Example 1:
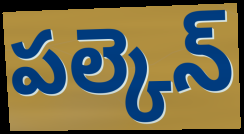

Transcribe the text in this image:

పల్కెన్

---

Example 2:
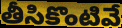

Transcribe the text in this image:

తీసికొంటివే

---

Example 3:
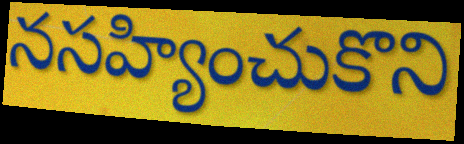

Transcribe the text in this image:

నసహ్యించుకొని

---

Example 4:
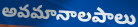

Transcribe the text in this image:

అవమానాలపాలు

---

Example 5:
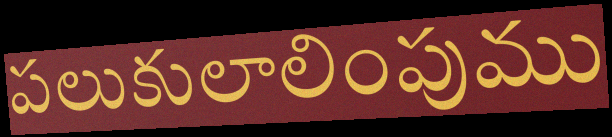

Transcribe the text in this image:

పలుకులాలింపుము